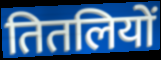
तितलियों